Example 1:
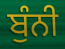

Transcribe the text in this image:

ਬੁੰਨੀ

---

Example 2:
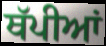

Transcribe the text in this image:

ਥੱਪੀਆਂ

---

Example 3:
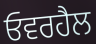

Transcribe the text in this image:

ਓਵਰਹੈਲ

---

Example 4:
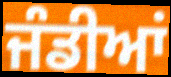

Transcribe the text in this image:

ਜੰਡੀਆਂ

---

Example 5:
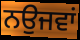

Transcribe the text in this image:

ਨਉਜਵਾਂ